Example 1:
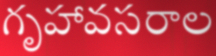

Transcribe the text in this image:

గృహావసరాల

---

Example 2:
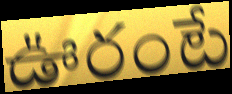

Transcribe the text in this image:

ఊరంటే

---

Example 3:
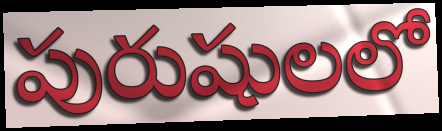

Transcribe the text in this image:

పురుషులలో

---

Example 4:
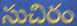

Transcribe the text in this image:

సుచిరం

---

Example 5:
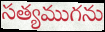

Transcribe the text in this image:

సత్యముగను